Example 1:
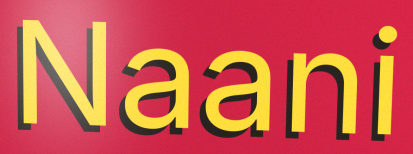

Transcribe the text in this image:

Naani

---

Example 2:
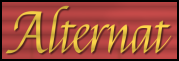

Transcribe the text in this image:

Alternat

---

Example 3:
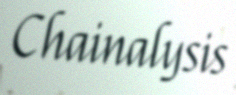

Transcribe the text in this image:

Chainalysis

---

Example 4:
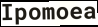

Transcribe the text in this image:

Ipomoea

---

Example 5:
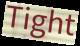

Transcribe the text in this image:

Tight